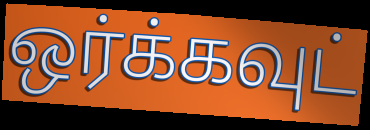
ஒர்க்கவுட்